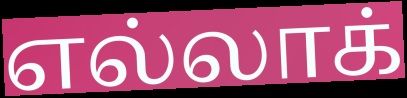
எல்லாக்